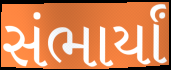
સંભાર્યાં